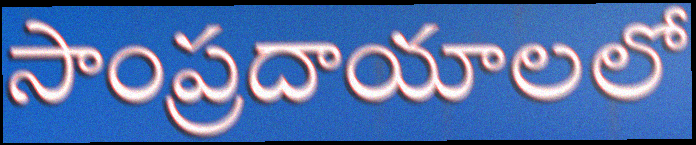
సాంప్రదాయాలలో